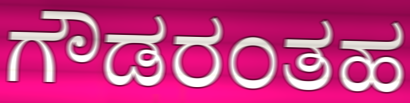
ಗೌಡರಂತಹ